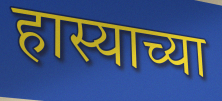
हास्याच्या